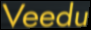
Veedu